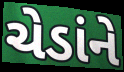
ચેડાંને